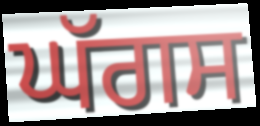
ਘੱਗਸ